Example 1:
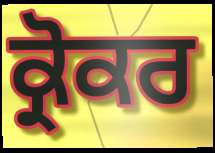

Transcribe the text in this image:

ਕ੍ਰੋਕਰ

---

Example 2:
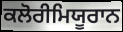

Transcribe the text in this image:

ਕਲੋਰੀਮਿਯੂਰਾਨ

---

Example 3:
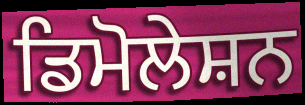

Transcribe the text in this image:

ਡਿਮੋਲੇਸ਼ਨ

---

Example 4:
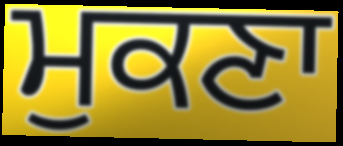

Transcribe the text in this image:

ਮੁਕਣਾ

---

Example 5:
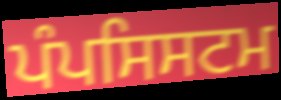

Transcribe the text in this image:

ਪੰਪਸਿਸਟਮ